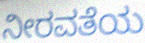
ನೀರವತೆಯ